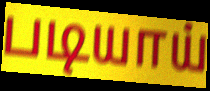
படியாய்